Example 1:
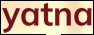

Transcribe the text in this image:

yatna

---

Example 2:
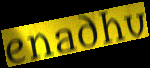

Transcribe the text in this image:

enadhu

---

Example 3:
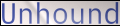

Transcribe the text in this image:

Unhound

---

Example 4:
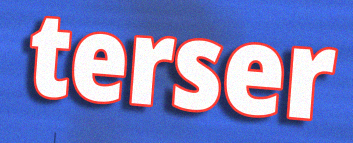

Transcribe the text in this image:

terser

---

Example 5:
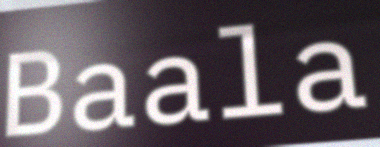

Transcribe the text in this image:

Baala